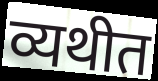
व्यथीत